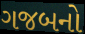
ગજબનો